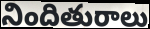
నిందితురాలు